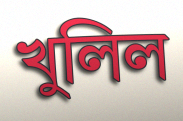
খুলিল